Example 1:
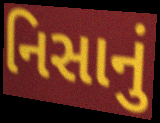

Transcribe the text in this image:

નિસાનું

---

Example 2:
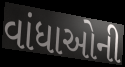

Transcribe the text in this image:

વાંધાઓની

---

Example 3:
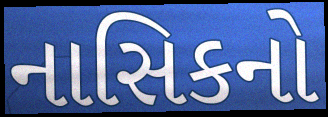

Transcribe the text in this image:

નાસિકનો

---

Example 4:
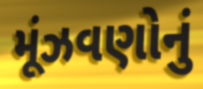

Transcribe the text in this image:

મૂંઝવણોનું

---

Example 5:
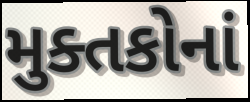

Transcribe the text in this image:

મુક્તકોનાં